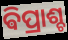
ଵିପ୍ରାଶ୍ଚ